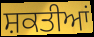
ਸ਼ਕਤੀਆਂ